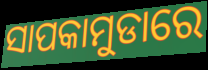
ସାପକାମୁଡାରେ